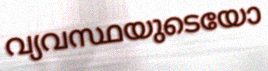
വ്യവസ്ഥയുടെയോ